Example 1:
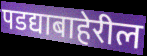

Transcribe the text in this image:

पडद्याबाहेरील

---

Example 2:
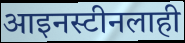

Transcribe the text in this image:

आइनस्टीनलाही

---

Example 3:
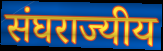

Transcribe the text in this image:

संघराज्यीय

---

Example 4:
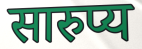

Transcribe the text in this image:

सारुप्य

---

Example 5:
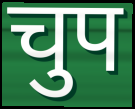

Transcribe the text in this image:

चुप